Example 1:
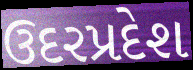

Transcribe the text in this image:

ઉદરપ્રદેશ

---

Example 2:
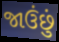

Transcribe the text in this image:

જાઉંછું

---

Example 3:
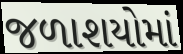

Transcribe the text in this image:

જળાશયોમાં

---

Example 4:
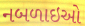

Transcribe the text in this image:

નબળાઇઓ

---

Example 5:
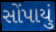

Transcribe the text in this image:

સોંપાયું